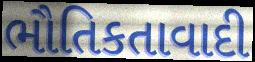
ભૌતિકતાવાદી